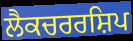
ਲੈਕਚਰਰਸ਼ਿਪ